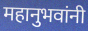
महानुभवांनी